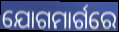
ଯୋଗମାର୍ଗରେ